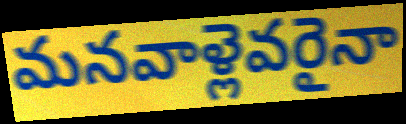
మనవాళ్లెవరైనా